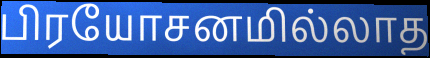
பிரயோசனமில்லாத